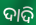
ଦାଦି